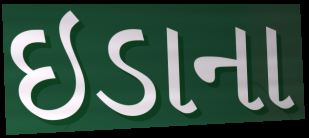
ઇડાના